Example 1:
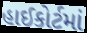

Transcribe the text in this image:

હાઈકોર્ટમાં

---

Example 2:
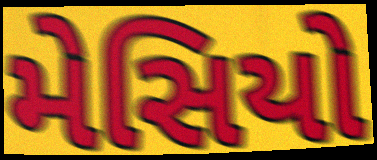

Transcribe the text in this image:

મેસિયો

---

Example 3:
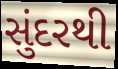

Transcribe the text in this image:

સુંદરથી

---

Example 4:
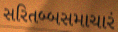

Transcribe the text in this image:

સરિતબ્બસમાચારં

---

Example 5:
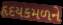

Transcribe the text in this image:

હૃદયકમળને